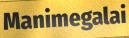
Manimegalai